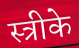
स्त्रीके